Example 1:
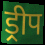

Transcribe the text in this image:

ड्रीप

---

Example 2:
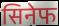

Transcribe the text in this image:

सिनेफ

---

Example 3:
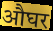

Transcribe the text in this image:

औघर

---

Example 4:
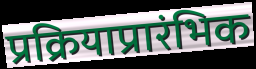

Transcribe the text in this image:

प्रक्रियाप्रारंभिक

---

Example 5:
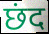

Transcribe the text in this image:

छंद